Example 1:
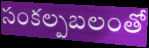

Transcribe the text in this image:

సంకల్పబలంతో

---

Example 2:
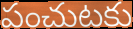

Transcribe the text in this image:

పంచుటకు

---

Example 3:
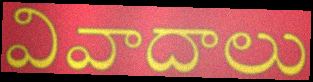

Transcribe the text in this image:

వివాదాలు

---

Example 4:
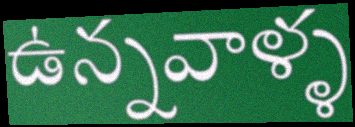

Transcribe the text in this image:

ఉన్నవాళ్ళ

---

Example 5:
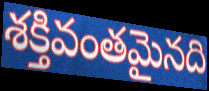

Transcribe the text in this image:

శక్తివంతమైనది